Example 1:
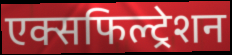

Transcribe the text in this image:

एक्सफिल्ट्रेशन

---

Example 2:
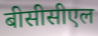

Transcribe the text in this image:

बीसीसीएल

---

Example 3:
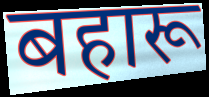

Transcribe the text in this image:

बहारू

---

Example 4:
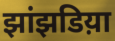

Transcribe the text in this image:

झांझडिय़ा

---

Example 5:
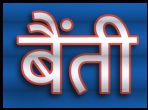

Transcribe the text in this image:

बैंती